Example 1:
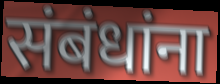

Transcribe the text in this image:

संबंधांना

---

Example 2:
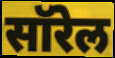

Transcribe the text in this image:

सॉरेल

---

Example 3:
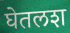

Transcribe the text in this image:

घेतलश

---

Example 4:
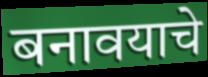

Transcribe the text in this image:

बनावयाचे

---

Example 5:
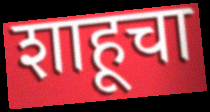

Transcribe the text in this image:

शाहूचा